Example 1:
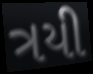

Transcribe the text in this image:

ત્રયી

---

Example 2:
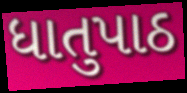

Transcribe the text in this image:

ધાતુપાઠ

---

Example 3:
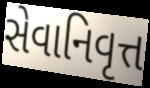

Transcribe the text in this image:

સેવાનિવૃત્ત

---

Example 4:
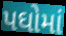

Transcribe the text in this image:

પઘોમાં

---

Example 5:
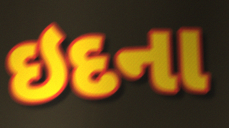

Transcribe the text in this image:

ઇદના